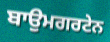
ਬਾਉਮਗਰਟੇਨ